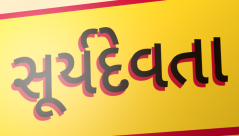
સૂર્યદેવતા